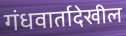
गंधवार्तादेखील